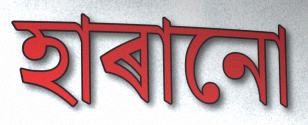
হাৰানো